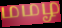
மமழ